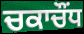
ਚਕਾਚੌਂਧ